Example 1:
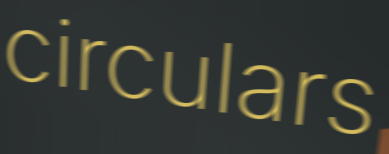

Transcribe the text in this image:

circulars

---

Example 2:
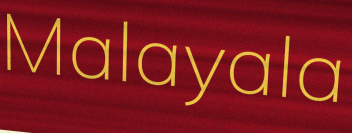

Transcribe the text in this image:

Malayala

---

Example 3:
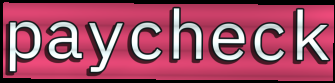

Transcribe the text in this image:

paycheck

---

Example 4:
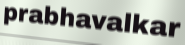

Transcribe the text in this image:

prabhavalkar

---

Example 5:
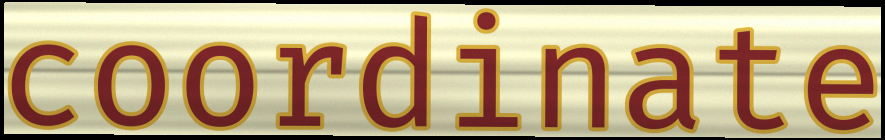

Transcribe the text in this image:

coordinate